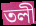
তলী